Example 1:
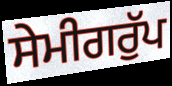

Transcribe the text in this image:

ਸੇਮੀਗਰੁੱਪ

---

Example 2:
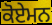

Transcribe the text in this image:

ਕੋਏਮਨ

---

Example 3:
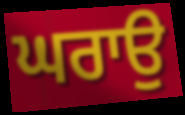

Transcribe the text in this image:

ਘਰਾਉ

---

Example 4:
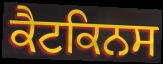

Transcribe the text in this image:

ਕੈਟਕਿਨਸ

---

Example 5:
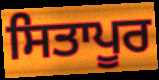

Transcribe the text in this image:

ਸਿਤਾਪੂਰ